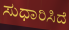
ಸುಧಾರಿಸಿದೆ